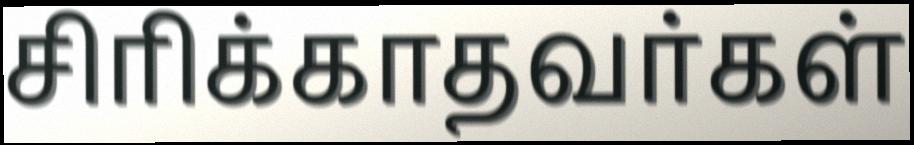
சிரிக்காதவர்கள்